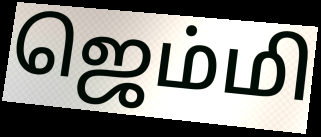
ஜெம்மி